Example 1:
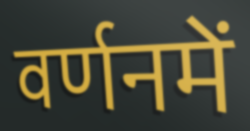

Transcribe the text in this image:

वर्णनमें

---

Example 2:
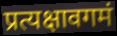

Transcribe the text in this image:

प्रत्यक्षावगमं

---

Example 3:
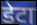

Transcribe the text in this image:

डेटा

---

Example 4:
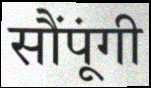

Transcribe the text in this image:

सौंपूंगी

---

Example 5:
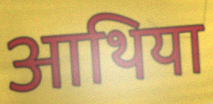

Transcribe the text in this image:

आथिया